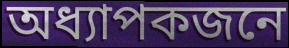
অধ্যাপকজনে